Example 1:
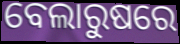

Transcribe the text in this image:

ବେଲାରୁଷରେ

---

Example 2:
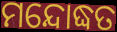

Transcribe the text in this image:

ମନ୍ଦୋଦ୍ଧତ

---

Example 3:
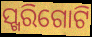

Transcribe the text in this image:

ସ୍ଖରିଗୋଟି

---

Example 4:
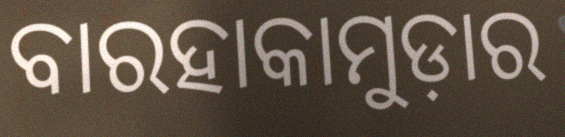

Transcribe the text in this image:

ବାରହାକାମୁଡ଼ାର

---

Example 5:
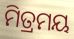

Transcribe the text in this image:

ମିତ୍ରମୟ